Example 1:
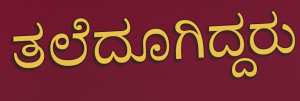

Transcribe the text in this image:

ತಲೆದೂಗಿದ್ದರು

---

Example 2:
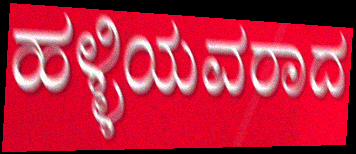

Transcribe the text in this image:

ಹಳ್ಳಿಯವರಾದ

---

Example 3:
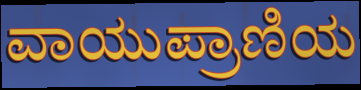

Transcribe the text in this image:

ವಾಯುಪ್ರಾಣಿಯ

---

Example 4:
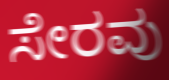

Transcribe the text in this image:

ಸೇರವು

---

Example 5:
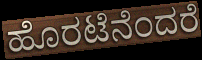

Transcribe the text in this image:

ಹೊರಟೆನೆಂದರೆ